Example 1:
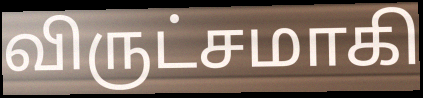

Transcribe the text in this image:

விருட்சமாகி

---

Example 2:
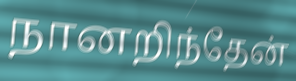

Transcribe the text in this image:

நானறிந்தேன்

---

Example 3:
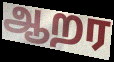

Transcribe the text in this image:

ஆறர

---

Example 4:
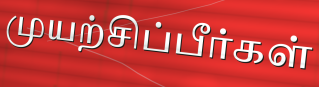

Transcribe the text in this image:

முயற்சிப்பீர்கள்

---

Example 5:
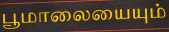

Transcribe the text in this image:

பூமாலையையும்